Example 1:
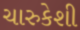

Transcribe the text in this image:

ચારુકેશી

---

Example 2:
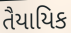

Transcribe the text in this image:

તૈયાયિક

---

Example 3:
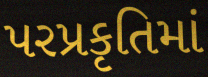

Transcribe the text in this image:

પરપ્રકૃતિમાં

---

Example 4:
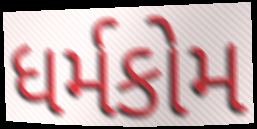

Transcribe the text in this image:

ધર્મકોમ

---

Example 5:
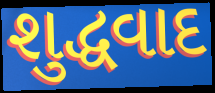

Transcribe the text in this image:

શુદ્ધવાદ